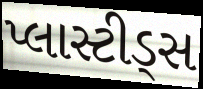
પ્લાસ્ટીડ્સ